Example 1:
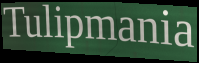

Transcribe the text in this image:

Tulipmania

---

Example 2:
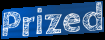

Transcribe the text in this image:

Prized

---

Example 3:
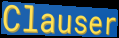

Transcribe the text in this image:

Clauser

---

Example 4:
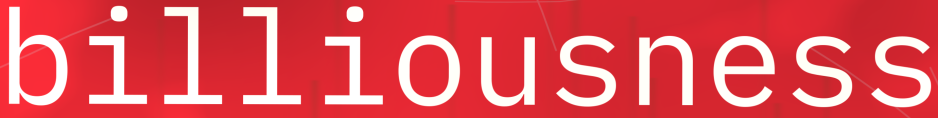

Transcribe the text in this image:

billiousness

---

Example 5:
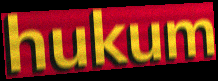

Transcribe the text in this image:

hukum